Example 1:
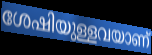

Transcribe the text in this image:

ശേഷിയുള്ളവയാണ്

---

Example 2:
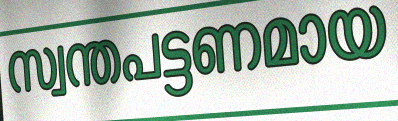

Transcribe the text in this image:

സ്വന്തപട്ടണമായ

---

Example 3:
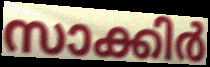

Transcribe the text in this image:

സാക്കിർ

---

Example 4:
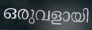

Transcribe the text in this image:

ഒരുവളായി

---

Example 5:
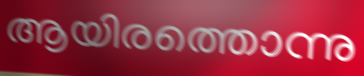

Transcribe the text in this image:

ആയിരത്തൊന്നു